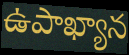
ఉపాఖ్యాన